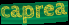
caprea